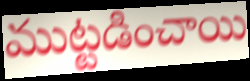
ముట్టడించాయి